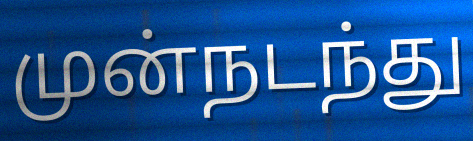
முன்நடந்து